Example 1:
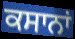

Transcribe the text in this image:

ਕਸਾਨਾਂ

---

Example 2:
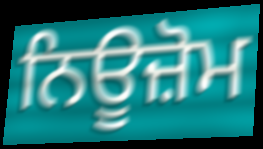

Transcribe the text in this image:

ਨਿਊਜ਼ੋਮ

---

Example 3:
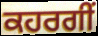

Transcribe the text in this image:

ਕਹਰਗੀਂ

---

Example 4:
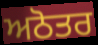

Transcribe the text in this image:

ਅਠੋਤਰ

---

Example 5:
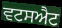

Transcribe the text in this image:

ਵਟਸਐਟ